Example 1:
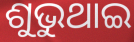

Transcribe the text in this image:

ଶୁଭୁଥାଇ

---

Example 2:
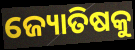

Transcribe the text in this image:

ଜ୍ୟୋତିଷକୁ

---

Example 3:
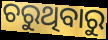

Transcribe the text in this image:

ଚରୁଥିବାରୁ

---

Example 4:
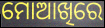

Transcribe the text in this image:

ମୋଆଖିରେ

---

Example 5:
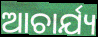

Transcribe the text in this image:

ଆଚାର୍ଯ୍ୟ